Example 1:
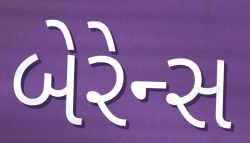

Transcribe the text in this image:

બેરેન્સ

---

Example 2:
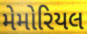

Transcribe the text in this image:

મેમોરિયલ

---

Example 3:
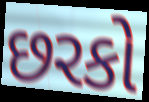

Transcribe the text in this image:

છરકો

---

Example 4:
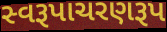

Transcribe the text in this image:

સ્વરૂપાચરણરૂપ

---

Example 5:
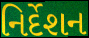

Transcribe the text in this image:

નિર્દેશન